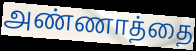
அண்ணாத்தை